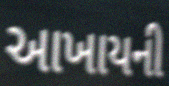
આખાયની